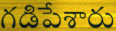
గడిపేశారు